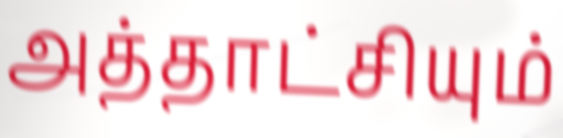
அத்தாட்சியும்